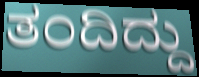
ತಂದಿದ್ದು